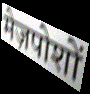
मेज़पोशों